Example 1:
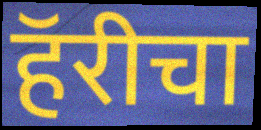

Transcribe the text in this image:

हॅरीचा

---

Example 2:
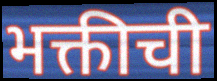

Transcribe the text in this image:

भक्तीची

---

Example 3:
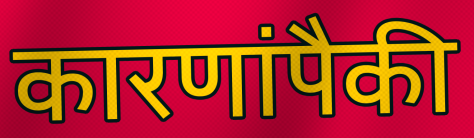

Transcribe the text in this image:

कारणांपैकी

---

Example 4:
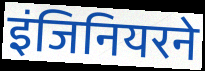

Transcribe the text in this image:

इंजिनियरने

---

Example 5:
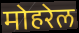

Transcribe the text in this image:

मोहरेल